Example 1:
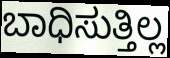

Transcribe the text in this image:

ಬಾಧಿಸುತ್ತಿಲ್ಲ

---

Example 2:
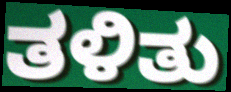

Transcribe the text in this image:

ತಳಿತು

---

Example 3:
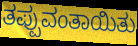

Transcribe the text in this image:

ತಪ್ಪುವಂತಾಯಿತು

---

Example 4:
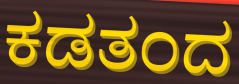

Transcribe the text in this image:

ಕಡತಂದ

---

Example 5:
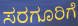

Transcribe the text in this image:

ಸರಗೂರಿಗೆ